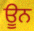
ਊਨ